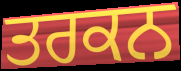
ਤਰਕਨ